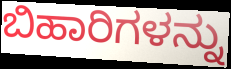
ಬಿಹಾರಿಗಳನ್ನು